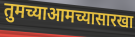
तुमच्याआमच्यासारखा